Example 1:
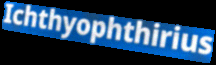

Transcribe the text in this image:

Ichthyophthirius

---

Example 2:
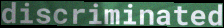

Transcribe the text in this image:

discriminated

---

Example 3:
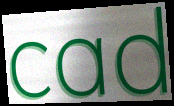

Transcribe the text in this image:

cad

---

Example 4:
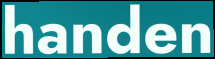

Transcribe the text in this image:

handen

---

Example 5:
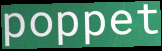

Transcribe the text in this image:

poppet